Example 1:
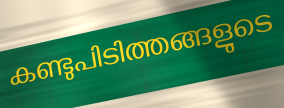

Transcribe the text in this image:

കണ്ടുപിടിത്തങ്ങളുടെ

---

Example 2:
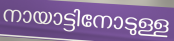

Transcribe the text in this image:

നായാട്ടിനോടുള്ള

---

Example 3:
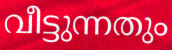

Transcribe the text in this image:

വീട്ടുന്നതും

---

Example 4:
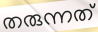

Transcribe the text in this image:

തരുന്നത്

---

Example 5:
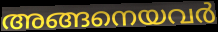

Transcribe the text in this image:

അങ്ങനെയവർ